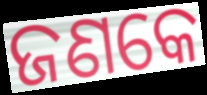
ଜଣକେ